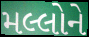
મલ્લોને